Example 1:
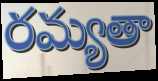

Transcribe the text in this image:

రమ్యతా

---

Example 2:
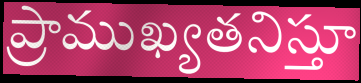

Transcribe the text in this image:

ప్రాముఖ్యతనిస్తూ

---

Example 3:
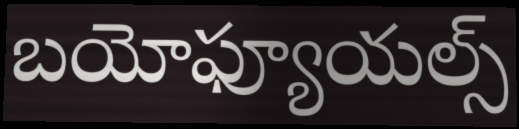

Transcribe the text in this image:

బయోఫ్యూయల్స్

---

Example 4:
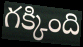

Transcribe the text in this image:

గక్కింది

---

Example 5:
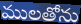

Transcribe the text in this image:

ములతోను